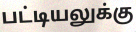
பட்டியலுக்கு